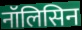
नॉलिसिन